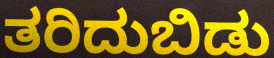
ತರಿದುಬಿಡು